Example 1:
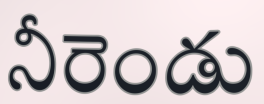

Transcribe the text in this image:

నీరెండు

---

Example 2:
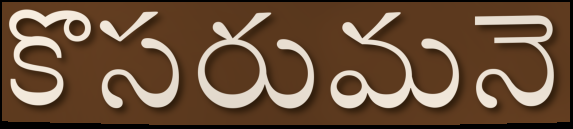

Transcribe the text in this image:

కొసరుమనె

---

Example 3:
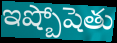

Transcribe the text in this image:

ఇష్బోషెతు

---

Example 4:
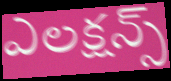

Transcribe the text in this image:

ఎలక్షన్స్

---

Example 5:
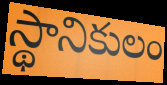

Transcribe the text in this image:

స్థానికులం